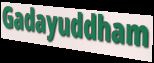
Gadayuddham